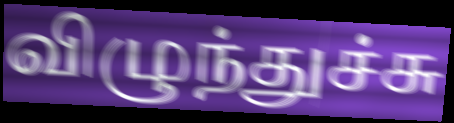
விழுந்துச்சு